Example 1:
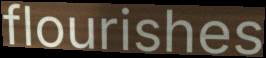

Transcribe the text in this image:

flourishes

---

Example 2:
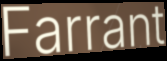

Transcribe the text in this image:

Farrant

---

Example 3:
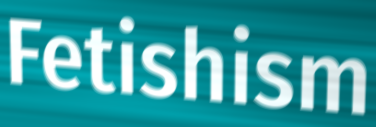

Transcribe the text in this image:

Fetishism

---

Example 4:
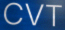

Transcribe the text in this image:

CVT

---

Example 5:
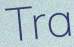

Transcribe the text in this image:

Tra